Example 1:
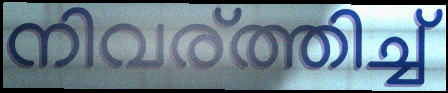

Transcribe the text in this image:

നിവര്ത്തിച്ച്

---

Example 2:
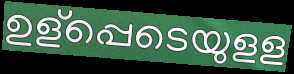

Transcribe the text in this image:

ഉള്പ്പെടെയുളള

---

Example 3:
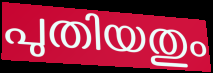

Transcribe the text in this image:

പുതിയതും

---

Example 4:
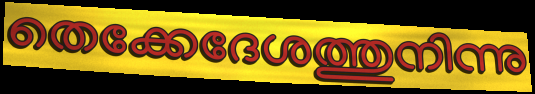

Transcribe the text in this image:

തെക്കേദേശത്തുനിന്നു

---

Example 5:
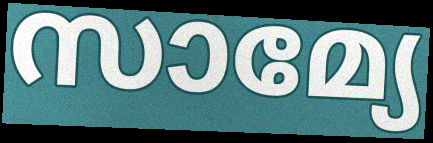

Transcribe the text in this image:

സാമ്യേ